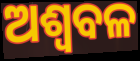
ଅଶ୍ୱବଳ